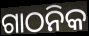
ଗାଠନିକ